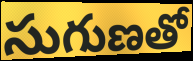
సుగుణతో